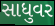
સાધુવર